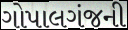
ગોપાલગંજની